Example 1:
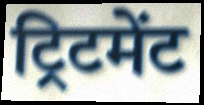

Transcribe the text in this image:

ट्रिटमेंट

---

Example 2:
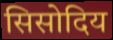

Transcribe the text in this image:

सिसोदिय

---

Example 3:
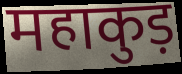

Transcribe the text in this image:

महाकुड़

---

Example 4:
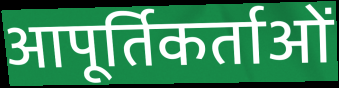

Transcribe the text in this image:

आपूर्तिकर्ताओं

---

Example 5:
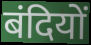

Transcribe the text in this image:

बंदियों